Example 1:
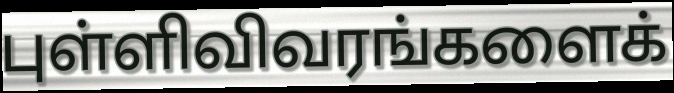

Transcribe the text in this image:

புள்ளிவிவரங்களைக்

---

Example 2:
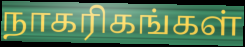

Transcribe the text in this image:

நாகரிகங்கள்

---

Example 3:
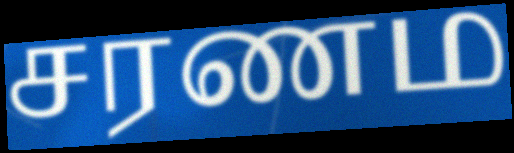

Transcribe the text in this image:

சரணம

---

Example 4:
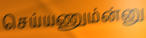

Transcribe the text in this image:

செய்யணும்ன்னு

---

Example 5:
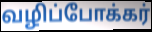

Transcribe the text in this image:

வழிப்போக்கர்